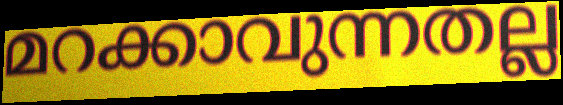
മറക്കാവുന്നതല്ല